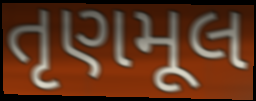
તૃણમૂલ